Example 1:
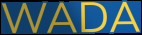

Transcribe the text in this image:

WADA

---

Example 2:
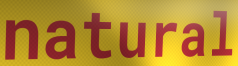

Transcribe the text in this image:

natural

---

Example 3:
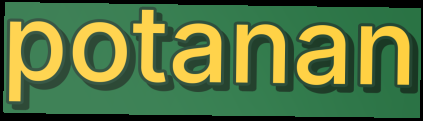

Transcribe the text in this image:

potanan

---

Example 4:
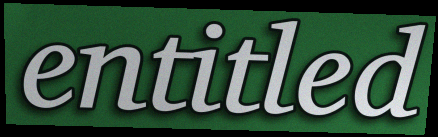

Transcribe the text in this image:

entitled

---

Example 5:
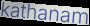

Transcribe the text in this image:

kathanam